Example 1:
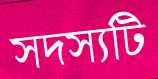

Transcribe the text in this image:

সদস্যটি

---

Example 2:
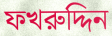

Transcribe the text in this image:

ফখরুদ্দিন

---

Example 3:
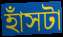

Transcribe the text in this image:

হাঁসটা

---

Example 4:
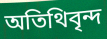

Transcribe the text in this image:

অতিথিবৃন্দ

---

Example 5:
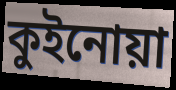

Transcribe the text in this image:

কুইনোয়া